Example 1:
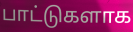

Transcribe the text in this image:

பாட்டுகளாக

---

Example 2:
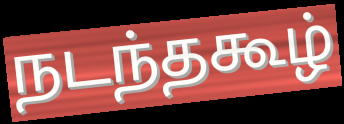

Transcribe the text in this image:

நடந்தகூழ்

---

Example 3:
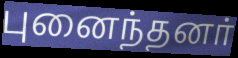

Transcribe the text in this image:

புனைந்தனர்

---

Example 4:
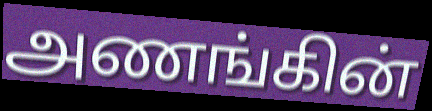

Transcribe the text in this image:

அணங்கின்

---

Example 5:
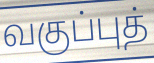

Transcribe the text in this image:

வகுப்புத்